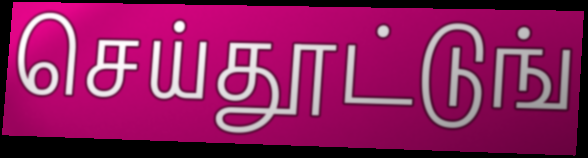
செய்தூட்டுங்